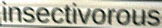
insectivorous